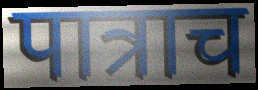
पात्राच